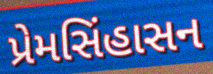
પ્રેમસિંહાસન